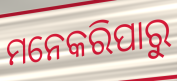
ମନେକରିପାରୁ